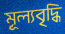
মূল্যবৃদ্ধি